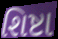
શિષ્ટા